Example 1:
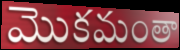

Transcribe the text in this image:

మొకమంతా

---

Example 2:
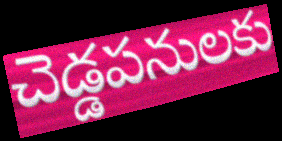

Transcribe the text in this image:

చెడ్డపనులకు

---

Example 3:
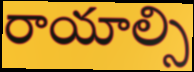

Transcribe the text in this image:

రాయాల్సి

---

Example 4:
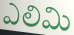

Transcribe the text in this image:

ఎలిమి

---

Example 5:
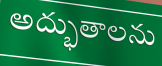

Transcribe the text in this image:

అద్భుతాలను